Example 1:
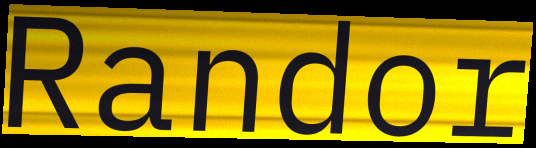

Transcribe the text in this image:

Randor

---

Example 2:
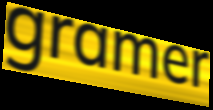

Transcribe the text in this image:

gramer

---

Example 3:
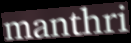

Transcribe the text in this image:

manthri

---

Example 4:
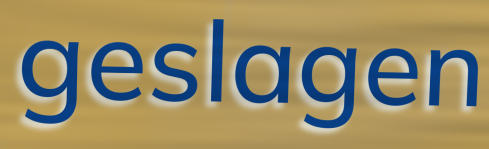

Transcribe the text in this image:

geslagen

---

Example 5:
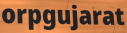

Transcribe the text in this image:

orpgujarat